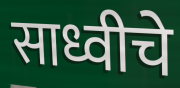
साध्वीचे